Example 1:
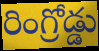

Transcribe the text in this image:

రింగ్రోడ్డు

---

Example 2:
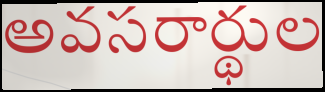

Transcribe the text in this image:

అవసరార్థుల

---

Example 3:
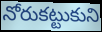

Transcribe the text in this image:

నోరుకట్టుకుని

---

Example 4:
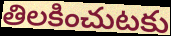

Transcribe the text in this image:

తిలకించుటకు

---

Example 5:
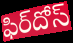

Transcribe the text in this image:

ఫిర్‌దోస్